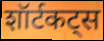
शॉर्टकट्स